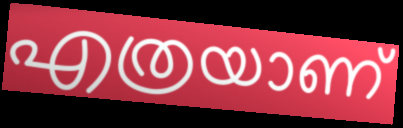
എത്രയാണ്